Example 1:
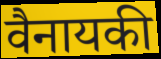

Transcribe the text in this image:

वैनायकी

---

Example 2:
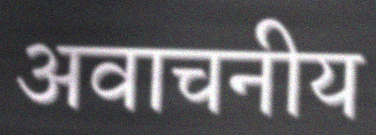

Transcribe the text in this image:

अवाचनीय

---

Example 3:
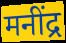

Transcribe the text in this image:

मनींद्र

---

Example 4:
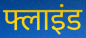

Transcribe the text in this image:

फ्लाइंड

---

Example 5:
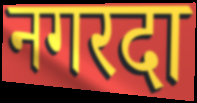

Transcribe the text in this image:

नगरदा